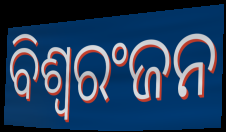
ବିଶ୍ୱରଂଜନ